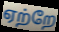
ஏற்றே